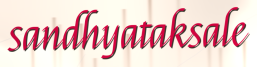
sandhyataksale